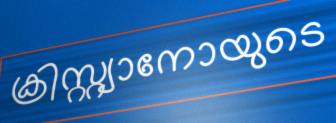
ക്രിസ്റ്റ്യാനോയുടെ